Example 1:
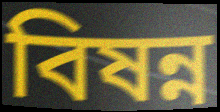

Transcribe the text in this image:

বিষন্ন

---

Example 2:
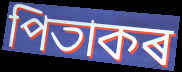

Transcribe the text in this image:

পিতাকৰ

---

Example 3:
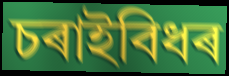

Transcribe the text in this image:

চৰাইবিধৰ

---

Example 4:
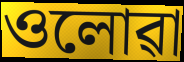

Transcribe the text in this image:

ওলোৱা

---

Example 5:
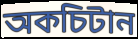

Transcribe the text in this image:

অকচিটান